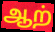
ஆற்